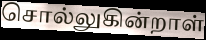
சொல்லுகின்றாள்